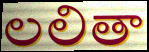
లలితా